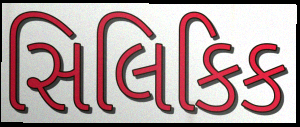
સિલિકિક